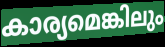
കാര്യമെങ്കിലും